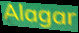
Alagar